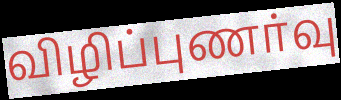
விழிப்புணர்வு